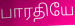
பாரதியே